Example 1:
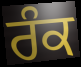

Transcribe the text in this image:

ਰੰਕ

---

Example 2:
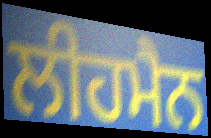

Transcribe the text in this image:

ਲੀਹਮੈਨ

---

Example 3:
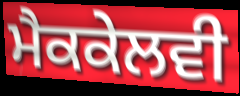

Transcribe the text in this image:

ਮੈਕਕੇਲਵੀ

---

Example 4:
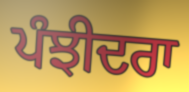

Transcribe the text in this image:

ਪੰਝੀਦਰਾ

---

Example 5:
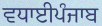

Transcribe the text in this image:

ਵਧਾਈਪੰਜਾਬ